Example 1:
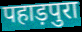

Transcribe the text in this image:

पहाड़पुरा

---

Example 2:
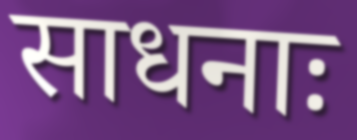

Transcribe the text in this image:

साधनाः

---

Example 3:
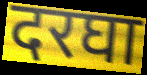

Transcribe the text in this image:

दरघा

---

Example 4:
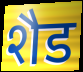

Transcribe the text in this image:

शैड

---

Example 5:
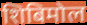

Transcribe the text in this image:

शिबिमोल